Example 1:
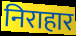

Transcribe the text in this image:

निराहार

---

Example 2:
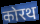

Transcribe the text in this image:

कोरथ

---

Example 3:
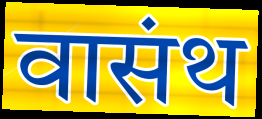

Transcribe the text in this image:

वासंथ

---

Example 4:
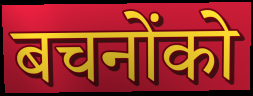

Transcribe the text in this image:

बचनोंको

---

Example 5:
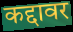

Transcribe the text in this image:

कद्दावर